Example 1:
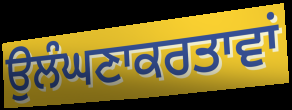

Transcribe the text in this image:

ਉਲੰਘਣਾਕਰਤਾਵਾਂ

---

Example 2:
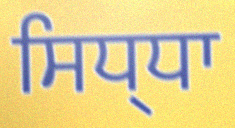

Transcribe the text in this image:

ਸਿਧ੍ਧਾ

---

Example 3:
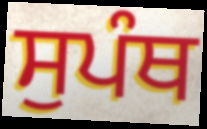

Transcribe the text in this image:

ਸੁਪੰਥ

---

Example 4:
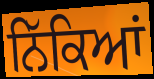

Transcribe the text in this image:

ਨਿੱਕਿਆਂ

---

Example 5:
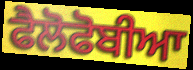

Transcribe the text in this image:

ਫੈਲੋਫੋਬੀਆ